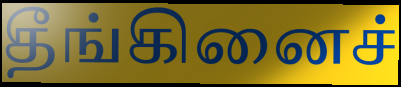
தீங்கினைச்